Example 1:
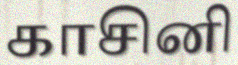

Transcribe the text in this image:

காசினி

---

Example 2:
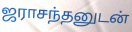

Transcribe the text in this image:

ஜராசந்தனுடன்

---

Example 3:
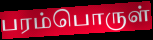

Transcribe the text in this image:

பரம்பொருள்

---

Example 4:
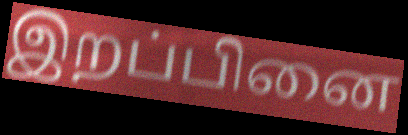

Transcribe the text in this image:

இறப்பினை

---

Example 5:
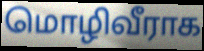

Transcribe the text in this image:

மொழிவீராக